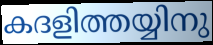
കദളിത്തയ്യിനു